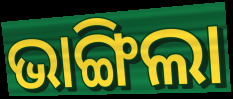
ଭାଙ୍ଗିଲା